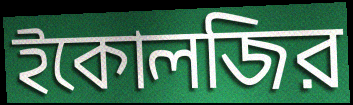
ইকোলজির